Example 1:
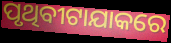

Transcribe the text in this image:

ପୃଥିବୀଟାଯାକରେ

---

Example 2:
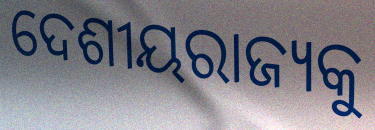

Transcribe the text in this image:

ଦେଶୀୟରାଜ୍ୟକୁ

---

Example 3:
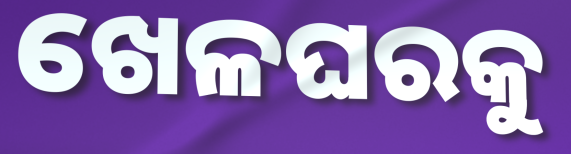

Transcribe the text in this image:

ଖେଳଘରକୁ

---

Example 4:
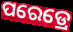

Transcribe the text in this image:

ପରେଡ୍ରେ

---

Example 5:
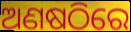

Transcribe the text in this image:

ଅଣଷଠିରେ